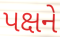
પક્ષને